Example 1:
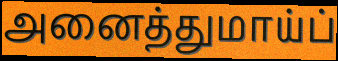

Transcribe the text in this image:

அனைத்துமாய்ப்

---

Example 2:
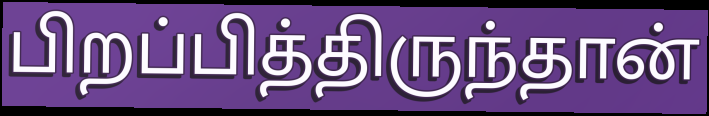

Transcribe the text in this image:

பிறப்பித்திருந்தான்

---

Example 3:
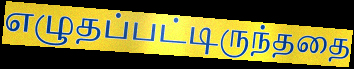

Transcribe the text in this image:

எழுதப்பட்டிருந்ததை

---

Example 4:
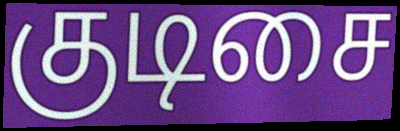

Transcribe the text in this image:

குடிசை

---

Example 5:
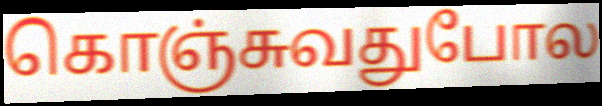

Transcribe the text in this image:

கொஞ்சுவதுபோல